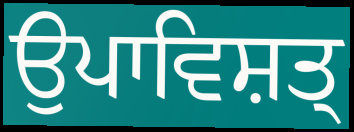
ਉਪਾਵਿਸ਼ਤ੍